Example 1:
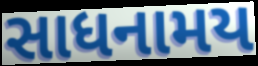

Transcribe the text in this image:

સાધનામય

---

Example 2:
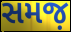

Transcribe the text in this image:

સમજ઼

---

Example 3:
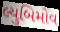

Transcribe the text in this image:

લ્યુબિમોવ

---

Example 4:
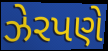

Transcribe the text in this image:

ઝેરપણે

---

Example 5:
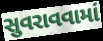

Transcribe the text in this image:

સુવરાવવામાં